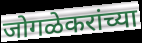
जोगळेकरांच्या